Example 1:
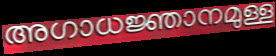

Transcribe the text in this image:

അഗാധജ്ഞാനമുള്ള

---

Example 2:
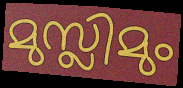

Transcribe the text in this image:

മുസ്ലിമും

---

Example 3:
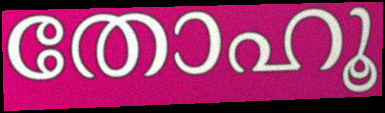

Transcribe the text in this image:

തോഹൂ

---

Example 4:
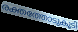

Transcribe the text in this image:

രക്തത്തോടുകൂടി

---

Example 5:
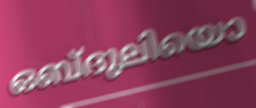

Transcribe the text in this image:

ഒബ്ദുലിയൊ